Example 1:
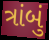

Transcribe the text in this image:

ત્રાંબું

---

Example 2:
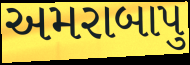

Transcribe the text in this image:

અમરાબાપુ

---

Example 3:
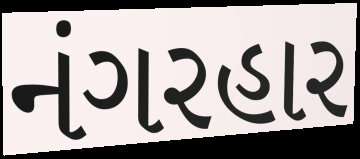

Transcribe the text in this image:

નંગરહાર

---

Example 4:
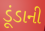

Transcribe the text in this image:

ડૂંડાની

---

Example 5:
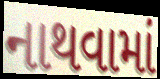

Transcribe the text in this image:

નાથવામાં